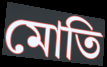
মোতি